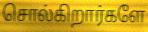
சொல்கிறார்களே